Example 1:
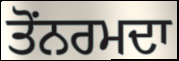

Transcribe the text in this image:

ਤੋਂਨਰਮਦਾ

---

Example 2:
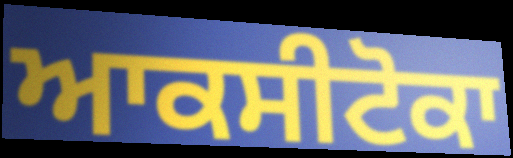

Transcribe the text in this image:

ਆਕਸੀਟੋਕਾ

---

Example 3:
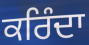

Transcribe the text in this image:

ਕਰਿੰਦਾ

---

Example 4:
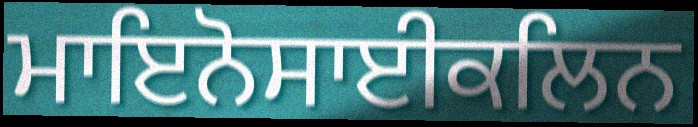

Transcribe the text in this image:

ਮਾਇਨੋਸਾਈਕਲਿਨ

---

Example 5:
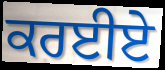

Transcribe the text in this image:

ਕਰਈਏ